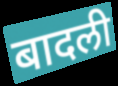
बादली